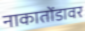
नाकातोंडावर